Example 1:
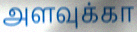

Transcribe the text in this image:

அளவுக்கா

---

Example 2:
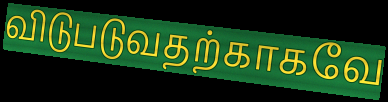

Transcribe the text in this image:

விடுபடுவதற்காகவே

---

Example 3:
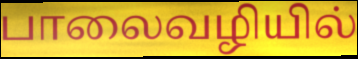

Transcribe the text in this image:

பாலைவழியில்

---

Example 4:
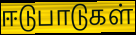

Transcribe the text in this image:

ஈடுபாடுகள்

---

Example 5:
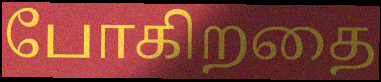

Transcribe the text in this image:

போகிறதை